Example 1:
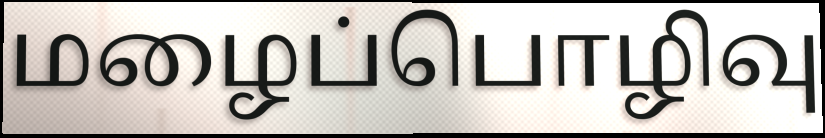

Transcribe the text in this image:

மழைப்பொழிவு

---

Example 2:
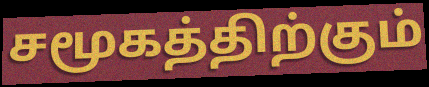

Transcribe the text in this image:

சமூகத்திற்கும்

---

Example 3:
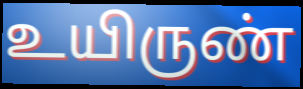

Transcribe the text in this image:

உயிருண்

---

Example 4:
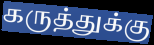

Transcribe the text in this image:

கருத்துக்கு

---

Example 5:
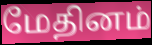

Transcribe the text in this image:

மேதினம்